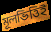
মূলভিত্তিই